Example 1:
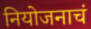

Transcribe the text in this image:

नियोजनाचं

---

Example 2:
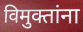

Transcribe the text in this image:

विमुक्तांना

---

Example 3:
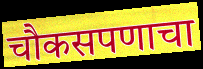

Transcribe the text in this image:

चौकसपणाचा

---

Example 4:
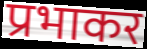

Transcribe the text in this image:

प्रभाकर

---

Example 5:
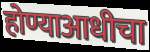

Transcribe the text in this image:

होण्याआधीचा